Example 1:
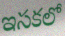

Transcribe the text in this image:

ఇసకలో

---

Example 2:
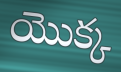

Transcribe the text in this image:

యొక్క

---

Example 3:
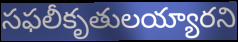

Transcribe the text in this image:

సఫలీకృతులయ్యారని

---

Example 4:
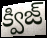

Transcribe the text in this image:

క్విజ్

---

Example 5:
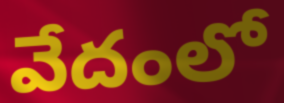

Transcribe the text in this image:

వేదంలో